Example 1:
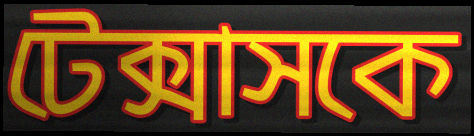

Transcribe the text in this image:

টেক্সাসকে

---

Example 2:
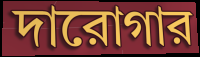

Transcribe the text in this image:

দারোগার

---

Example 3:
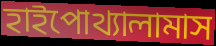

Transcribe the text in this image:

হাইপোথ্যালামাস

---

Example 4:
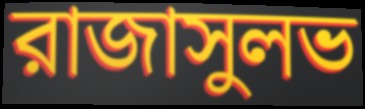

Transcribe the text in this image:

রাজাসুলভ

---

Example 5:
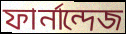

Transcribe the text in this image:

ফার্নান্দেজ